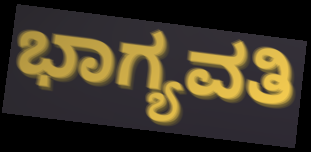
ಭಾಗ್ಯವತಿ